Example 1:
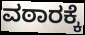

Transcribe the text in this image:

ವಠಾರಕ್ಕೆ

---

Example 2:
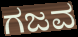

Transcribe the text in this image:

ಗಜವ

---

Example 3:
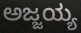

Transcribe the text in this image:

ಅಜ್ಜಯ್ಯ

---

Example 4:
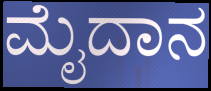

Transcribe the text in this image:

ಮೈದಾನ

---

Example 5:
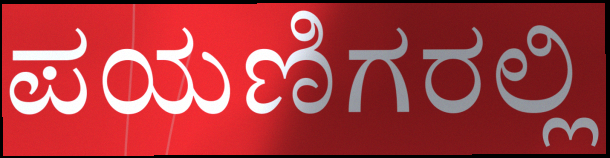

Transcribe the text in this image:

ಪಯಣಿಗರಲ್ಲಿ